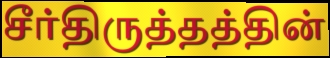
சீர்திருத்தத்தின்